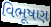
વિભૂષણ